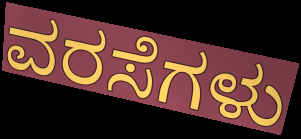
ವರಸೆಗಳು